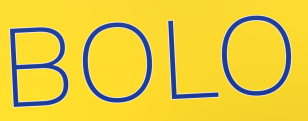
BOLO